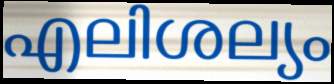
എലിശല്യം